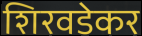
शिरवडेकर